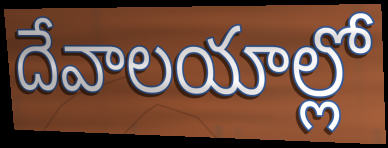
దేవాలయాల్లో